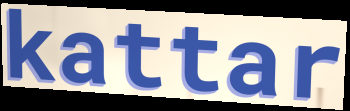
kattar